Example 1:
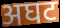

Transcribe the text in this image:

अघट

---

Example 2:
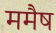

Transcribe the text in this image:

ममैष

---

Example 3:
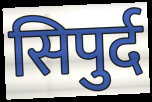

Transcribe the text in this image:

सिपुर्द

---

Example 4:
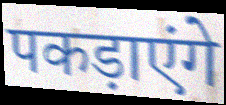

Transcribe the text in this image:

पकड़ाएंगे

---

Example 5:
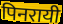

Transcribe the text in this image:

पिनरायी